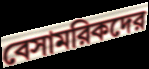
বেসামরিকদের